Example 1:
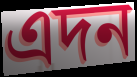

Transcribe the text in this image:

এদন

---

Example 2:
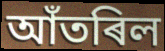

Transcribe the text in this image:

আঁতৰিল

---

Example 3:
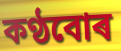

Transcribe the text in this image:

কণ্ঠবোৰ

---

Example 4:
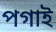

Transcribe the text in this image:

পগাই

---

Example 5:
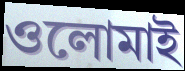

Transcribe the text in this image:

ওলোমাই